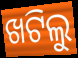
ଖଟିଲୁ